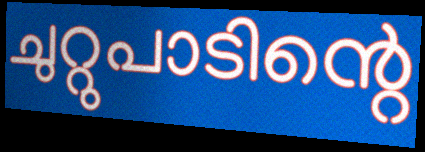
ചുറ്റുപാടിന്റെ